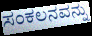
ಸಂಕಲನವನ್ನು